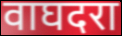
वाघदरा